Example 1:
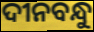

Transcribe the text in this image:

ଦୀନବନ୍ଧୁ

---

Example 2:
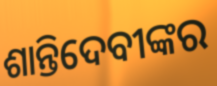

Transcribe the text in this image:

ଶାନ୍ତିଦେବୀଙ୍କର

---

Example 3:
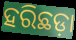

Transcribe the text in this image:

ହରିଛଡ଼ା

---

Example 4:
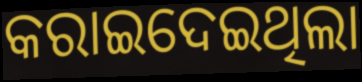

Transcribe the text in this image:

କରାଇଦେଇଥିଲା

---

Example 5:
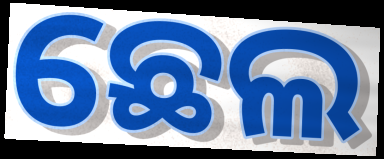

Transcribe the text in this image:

ଛେଲ